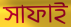
সাফাই